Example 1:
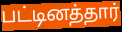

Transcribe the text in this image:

பட்டினத்தார்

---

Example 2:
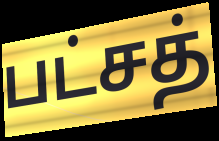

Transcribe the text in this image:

பட்சத்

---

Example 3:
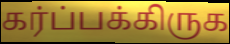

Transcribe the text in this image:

கர்ப்பக்கிருக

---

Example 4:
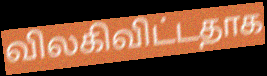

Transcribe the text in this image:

விலகிவிட்டதாக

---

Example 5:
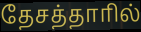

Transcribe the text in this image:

தேசத்தாரில்